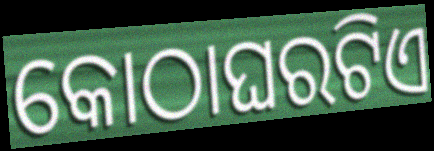
କୋଠାଘରଟିଏ